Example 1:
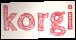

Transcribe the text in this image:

korgi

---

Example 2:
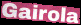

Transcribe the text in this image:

Gairola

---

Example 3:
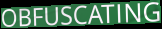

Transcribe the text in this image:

OBFUSCATING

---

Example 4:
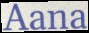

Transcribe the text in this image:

Aana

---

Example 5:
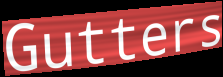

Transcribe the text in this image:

Gutters